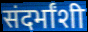
संदर्भांशी